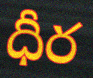
ధీర